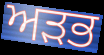
ਅੜਭ